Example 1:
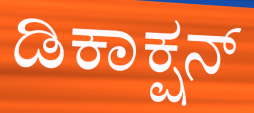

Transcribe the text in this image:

ಡಿಕಾಕ್ಷನ್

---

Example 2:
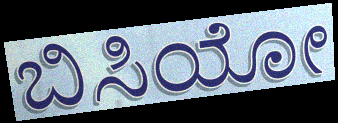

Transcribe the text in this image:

ಬಿಸಿಯೋ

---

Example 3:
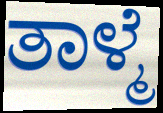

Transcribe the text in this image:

ತಾಳ್ಮೆ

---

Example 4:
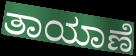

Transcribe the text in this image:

ತಾಯಾಣೆ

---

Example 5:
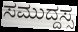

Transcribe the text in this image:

ಸಮುದ್ದಸ್ಸ